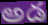
అడ